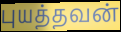
புயத்தவன்